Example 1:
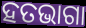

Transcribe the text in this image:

ହତଭାଗା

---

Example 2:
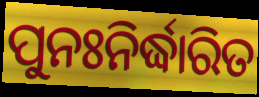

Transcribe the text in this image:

ପୁନଃନିର୍ଦ୍ଧାରିତ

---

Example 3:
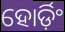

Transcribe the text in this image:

ହୋର୍ଡ଼ିଂ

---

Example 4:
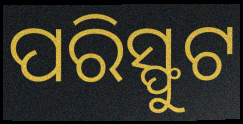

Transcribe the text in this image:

ପରିସ୍ଫୁଟ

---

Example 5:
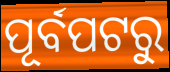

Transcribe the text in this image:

ପୂର୍ବପଟରୁ